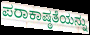
ಪರಾಕಾಷ್ಠತೆಯನ್ನು